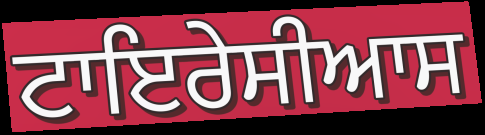
ਟਾਇਰੇਸੀਆਸ